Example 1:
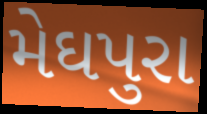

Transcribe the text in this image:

મેઘપુરા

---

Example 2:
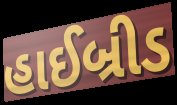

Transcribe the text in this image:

હાઈબ્રીડ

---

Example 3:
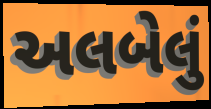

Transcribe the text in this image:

અલબેલું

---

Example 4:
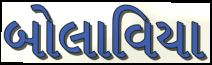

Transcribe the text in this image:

બોલાવિયા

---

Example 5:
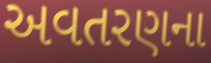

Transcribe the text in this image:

અવતરણના